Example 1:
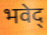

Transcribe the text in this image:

भवेद्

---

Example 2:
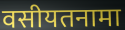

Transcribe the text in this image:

वसीयतनामा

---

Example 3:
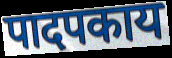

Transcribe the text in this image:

पादपकाय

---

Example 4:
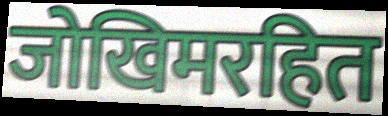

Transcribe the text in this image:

जोखिमरहित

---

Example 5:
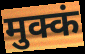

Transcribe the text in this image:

मुक्कं